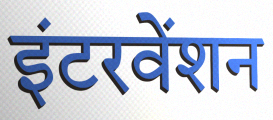
इंटरवेंशन